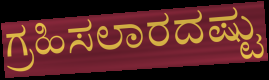
ಗ್ರಹಿಸಲಾರದಷ್ಟು